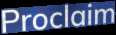
Proclaim